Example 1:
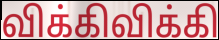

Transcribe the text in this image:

விக்கிவிக்கி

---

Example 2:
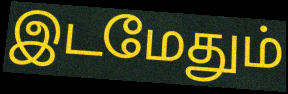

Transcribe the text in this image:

இடமேதும்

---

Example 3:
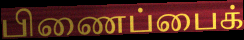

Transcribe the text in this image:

பிணைப்பைக்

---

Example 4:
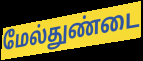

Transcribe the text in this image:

மேல்துண்டை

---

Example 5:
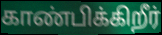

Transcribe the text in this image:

காண்பிக்கிறீர்